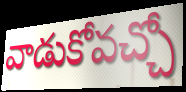
వాడుకోవచ్చో